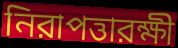
নিরাপত্তারক্ষী